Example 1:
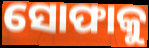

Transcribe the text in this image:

ସୋଫାକୁ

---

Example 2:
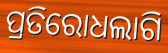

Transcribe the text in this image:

ପ୍ରତିରୋଧଲାଗି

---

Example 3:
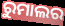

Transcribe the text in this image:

ରୁମାଲର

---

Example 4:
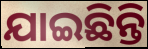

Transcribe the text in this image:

ଯାଇଛିନ୍ତି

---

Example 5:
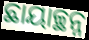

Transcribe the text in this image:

ଛାୟାଚ୍ଛନ୍ନ